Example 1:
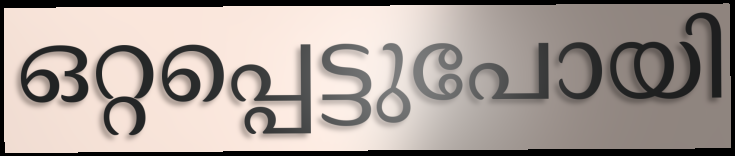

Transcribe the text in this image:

ഒറ്റപ്പെട്ടുപോയി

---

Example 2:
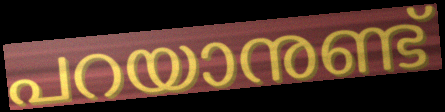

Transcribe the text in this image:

പറയാനുണ്ട്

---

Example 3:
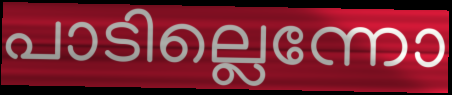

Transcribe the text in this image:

പാടില്ലെന്നോ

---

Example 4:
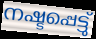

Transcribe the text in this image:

നഷ്ടപ്പെട്ടു്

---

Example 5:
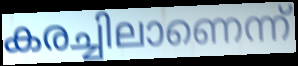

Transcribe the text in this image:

കരച്ചിലാണെന്ന്